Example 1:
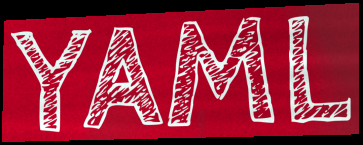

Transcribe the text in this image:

YAML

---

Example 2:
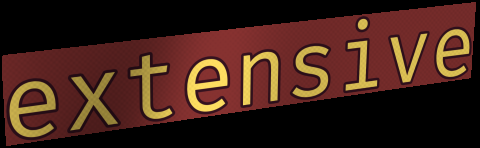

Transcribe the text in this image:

extensive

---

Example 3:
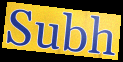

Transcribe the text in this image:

Subh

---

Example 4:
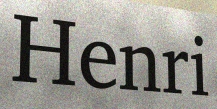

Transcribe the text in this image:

Henri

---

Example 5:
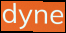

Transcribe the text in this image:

dyne